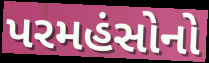
પરમહંસોનો